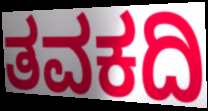
ತವಕದಿ